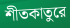
শীতকাতুরে